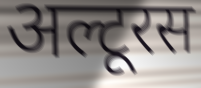
अल्टूरस